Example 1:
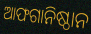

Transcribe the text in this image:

ଆଫଗାନିଷ୍ଠାନ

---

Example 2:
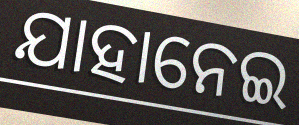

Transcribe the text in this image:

ଯାହାନେଇ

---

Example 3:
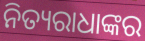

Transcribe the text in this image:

ନିତ୍ୟରାଧାଙ୍କର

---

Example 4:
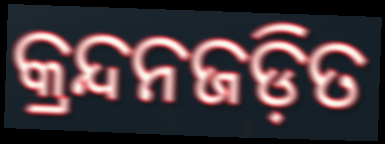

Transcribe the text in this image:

କ୍ରନ୍ଦନଜଡ଼ିତ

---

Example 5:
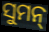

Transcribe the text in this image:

ସୁମନ୍